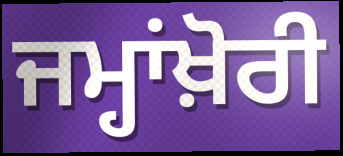
ਜਮ੍ਹਾਂਖ਼ੋਰੀ